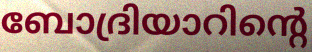
ബോദ്രിയാറിന്റെ